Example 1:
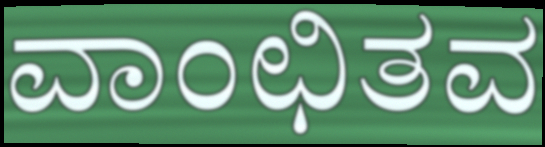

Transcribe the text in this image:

ವಾಂಛಿತವ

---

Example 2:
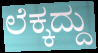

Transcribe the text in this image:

ಲೆಕ್ಕದ್ದು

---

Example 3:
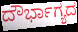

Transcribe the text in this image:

ದೌರ್ಭಾಗ್ಯದ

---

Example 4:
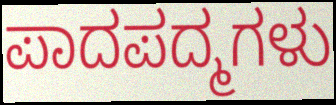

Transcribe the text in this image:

ಪಾದಪದ್ಮಗಳು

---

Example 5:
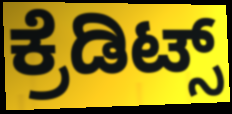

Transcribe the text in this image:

ಕ್ರೆಡಿಟ್ಸ್